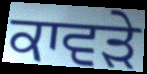
ਕਾਵੜੇ